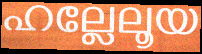
ഹല്ലേലൂയ